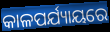
କାଳପର୍ଯ୍ୟାୟରେ